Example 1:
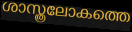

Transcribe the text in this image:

ശാസ്ത്രലോകത്തെ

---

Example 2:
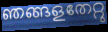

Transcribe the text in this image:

ഞങ്ങളതേറ്റു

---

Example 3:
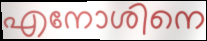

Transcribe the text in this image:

എനോശിനെ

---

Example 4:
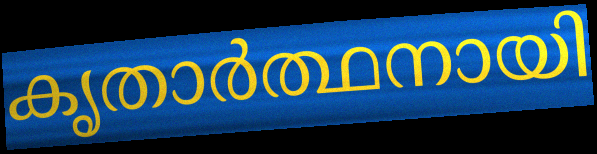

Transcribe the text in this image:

കൃതാർത്ഥനായി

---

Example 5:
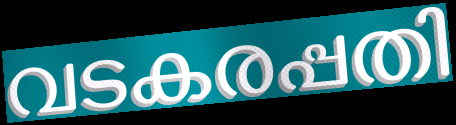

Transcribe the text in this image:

വടകരപ്പതി